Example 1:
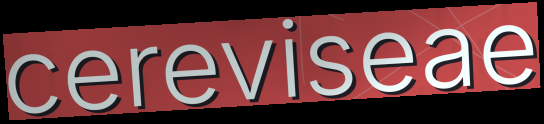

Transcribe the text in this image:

cereviseae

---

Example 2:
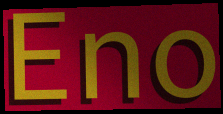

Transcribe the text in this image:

Eno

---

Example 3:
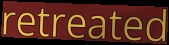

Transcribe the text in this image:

retreated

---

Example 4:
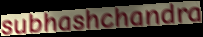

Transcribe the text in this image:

subhashchandra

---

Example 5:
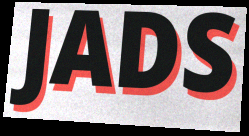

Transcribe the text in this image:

JADS